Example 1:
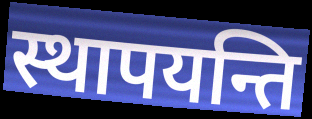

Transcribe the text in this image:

स्थापयन्ति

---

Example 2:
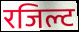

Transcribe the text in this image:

रजिल्ट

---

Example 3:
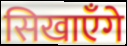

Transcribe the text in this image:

सिखाएँगे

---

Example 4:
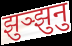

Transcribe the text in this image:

झुञ्झुनु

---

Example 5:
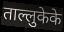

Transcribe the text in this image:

ताल्लुकेके